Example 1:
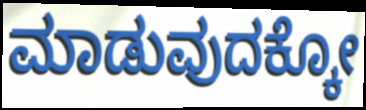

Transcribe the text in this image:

ಮಾಡುವುದಕ್ಕೋ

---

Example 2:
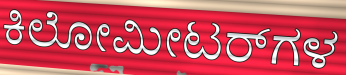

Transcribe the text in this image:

ಕಿಲೋಮೀಟರ್‌ಗಳ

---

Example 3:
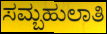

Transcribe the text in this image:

ಸಮ್ಬಹುಲಾತಿ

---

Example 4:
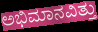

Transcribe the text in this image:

ಅಭಿಮಾನವಿತ್ತು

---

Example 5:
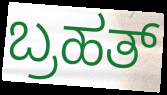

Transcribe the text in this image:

ಬ್ರಹತ್